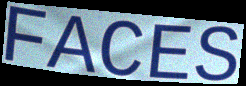
FACES